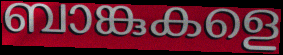
ബാങ്കുകളെ